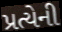
પ્રત્યેની